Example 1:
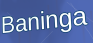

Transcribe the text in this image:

Baninga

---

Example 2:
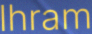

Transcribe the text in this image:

lhram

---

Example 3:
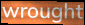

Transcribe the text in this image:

wrought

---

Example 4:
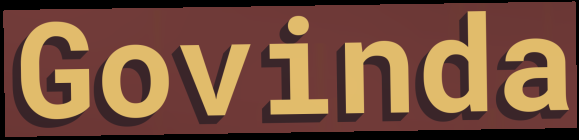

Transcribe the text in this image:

Govinda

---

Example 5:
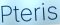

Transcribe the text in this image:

Pteris